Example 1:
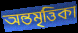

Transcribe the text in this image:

অন্তর্মৃত্তিকা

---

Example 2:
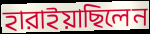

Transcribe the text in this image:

হারাইয়াছিলেন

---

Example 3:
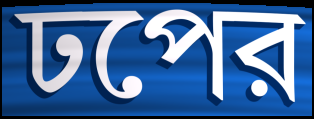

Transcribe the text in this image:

ঢপের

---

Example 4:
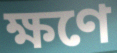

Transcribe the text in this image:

ক্ষণে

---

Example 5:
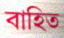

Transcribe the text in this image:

বাহিত